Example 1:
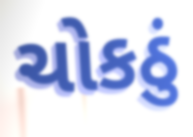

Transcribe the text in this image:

ચોકઠું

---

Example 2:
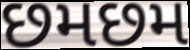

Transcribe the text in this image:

છમછમ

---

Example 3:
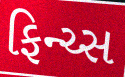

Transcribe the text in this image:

ફિન્ચ્સ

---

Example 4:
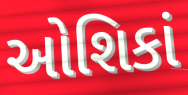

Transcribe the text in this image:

ઓશિકાં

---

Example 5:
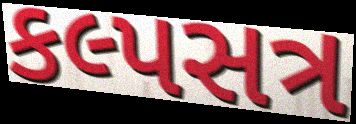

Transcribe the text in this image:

કલ્પસત્ર